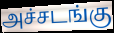
அச்சடங்கு